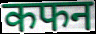
कफन